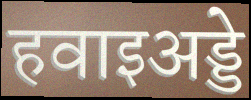
हवाइअड्डे